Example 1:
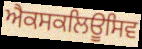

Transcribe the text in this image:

ਐਕਸਕਲਿਊਸਿਵ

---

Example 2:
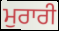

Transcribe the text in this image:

ਮੁਰਾਰੀ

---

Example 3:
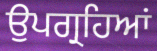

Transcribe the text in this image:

ਉਪਗ੍ਰਹਿਆਂ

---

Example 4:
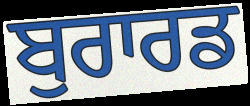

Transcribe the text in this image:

ਬੁਰਾਰਡ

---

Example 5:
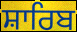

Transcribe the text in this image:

ਸ਼ਾਰਿਬ